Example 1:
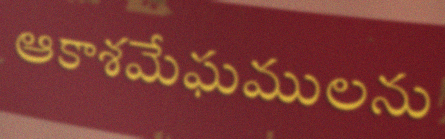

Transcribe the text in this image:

ఆకాశమేఘములను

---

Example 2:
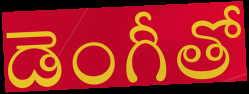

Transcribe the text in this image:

డెంగీతో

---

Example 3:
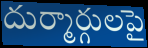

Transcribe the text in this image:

దుర్మార్గులపై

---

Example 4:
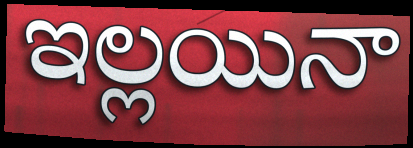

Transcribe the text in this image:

ఇల్లయినా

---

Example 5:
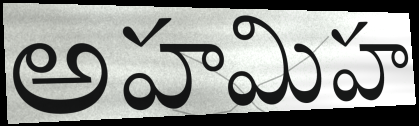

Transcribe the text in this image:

అహమిహ